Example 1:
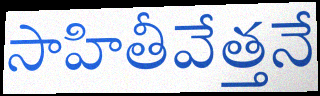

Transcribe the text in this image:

సాహితీవేత్తనే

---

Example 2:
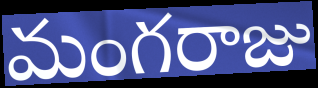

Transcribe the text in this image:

మంగరాజు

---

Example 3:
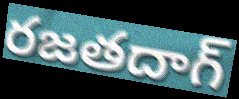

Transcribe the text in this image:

రజతదాగ్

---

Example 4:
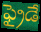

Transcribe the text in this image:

ఫ్రైడే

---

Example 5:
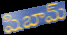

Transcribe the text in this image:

షిబామ్